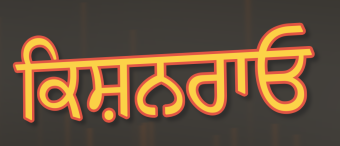
ਕਿਸ਼ਨਰਾਓ